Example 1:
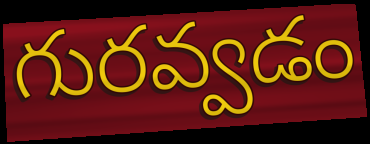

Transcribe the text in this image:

గురవ్వడం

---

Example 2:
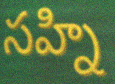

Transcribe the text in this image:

సహ్ని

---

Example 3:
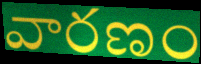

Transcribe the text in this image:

వారణం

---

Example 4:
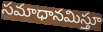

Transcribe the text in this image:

సమాధానమిస్తూ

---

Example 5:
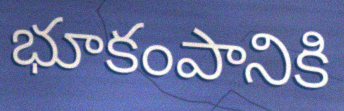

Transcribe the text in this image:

భూకంపానికి